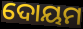
ଦୋୟମ